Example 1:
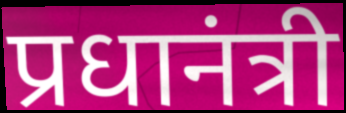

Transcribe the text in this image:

प्रधानंत्री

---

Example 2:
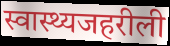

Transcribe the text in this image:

स्वास्थ्यजहरीली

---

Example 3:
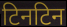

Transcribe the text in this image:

टिनटिन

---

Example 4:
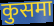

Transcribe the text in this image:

कुसमा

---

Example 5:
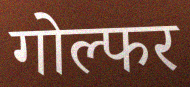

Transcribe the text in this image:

गोल्फर